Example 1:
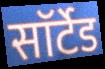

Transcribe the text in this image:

सॉर्टेड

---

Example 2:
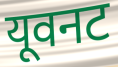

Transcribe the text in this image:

यूवनट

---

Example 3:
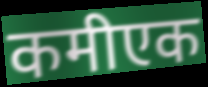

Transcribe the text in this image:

कमीएक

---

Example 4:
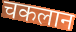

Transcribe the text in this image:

चकलान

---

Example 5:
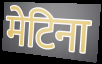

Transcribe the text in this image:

मेटिना